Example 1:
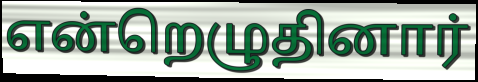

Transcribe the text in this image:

என்றெழுதினார்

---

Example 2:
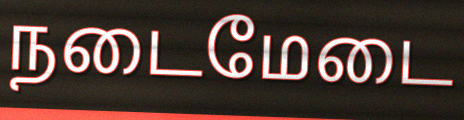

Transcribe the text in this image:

நடைமேடை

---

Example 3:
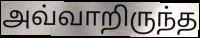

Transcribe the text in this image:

அவ்வாறிருந்த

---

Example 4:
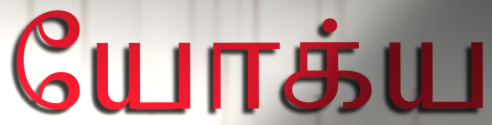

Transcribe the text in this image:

யோக்ய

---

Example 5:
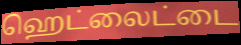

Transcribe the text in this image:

ஹெட்லைட்டை